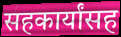
सहकार्यांसह